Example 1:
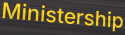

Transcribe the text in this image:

Ministership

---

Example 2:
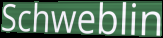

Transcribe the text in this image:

Schweblin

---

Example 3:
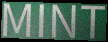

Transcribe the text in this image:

MINT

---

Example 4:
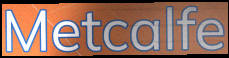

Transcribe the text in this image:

Metcalfe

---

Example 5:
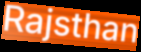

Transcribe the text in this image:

Rajsthan